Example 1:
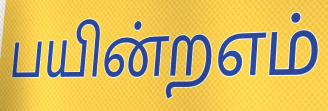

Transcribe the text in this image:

பயின்றஎம்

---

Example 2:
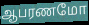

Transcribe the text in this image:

ஆபரணமோ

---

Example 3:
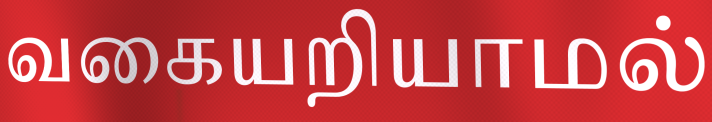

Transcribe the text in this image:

வகையறியாமல்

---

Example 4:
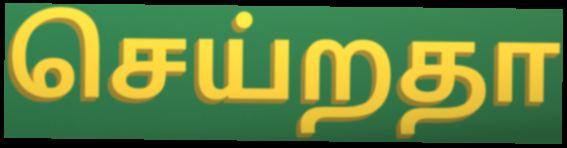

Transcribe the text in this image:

செய்றதா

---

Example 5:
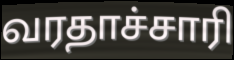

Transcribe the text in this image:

வரதாச்சாரி